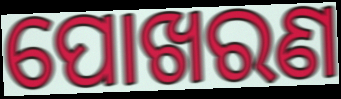
ପୋଖରଣ